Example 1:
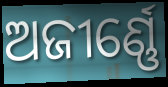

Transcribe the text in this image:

ଅଜୀର୍ଣ୍ଣେ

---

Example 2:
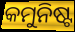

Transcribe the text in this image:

କମୁନିଷ୍ଟ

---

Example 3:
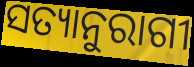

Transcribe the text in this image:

ସତ୍ୟାନୁରାଗୀ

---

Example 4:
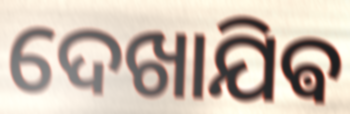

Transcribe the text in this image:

ଦେଖାଯିଵ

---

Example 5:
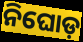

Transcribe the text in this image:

ନିଘୋଡ଼